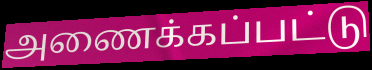
அணைக்கப்பட்டு